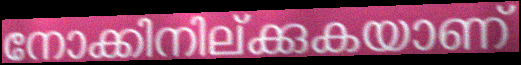
നോക്കിനില്ക്കുകയാണ്